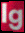
Ig